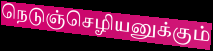
நெடுஞ்செழியனுக்கும்